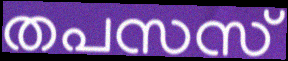
തപസസ്